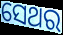
ସେଥର